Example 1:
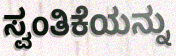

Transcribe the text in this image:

ಸ್ವಂತಿಕೆಯನ್ನು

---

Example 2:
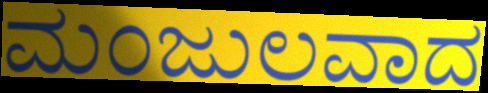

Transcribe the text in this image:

ಮಂಜುಲವಾದ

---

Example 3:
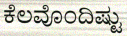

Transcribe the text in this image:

ಕೆಲವೊಂದಿಷ್ಟು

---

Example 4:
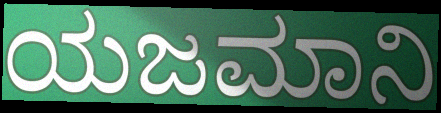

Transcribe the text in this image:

ಯಜಮಾನಿ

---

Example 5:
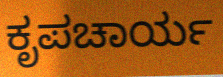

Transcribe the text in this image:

ಕೃಪಚಾರ್ಯ